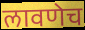
लावणेच